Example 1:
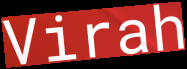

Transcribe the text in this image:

Virah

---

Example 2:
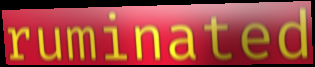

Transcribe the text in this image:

ruminated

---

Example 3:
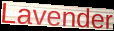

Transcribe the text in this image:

Lavender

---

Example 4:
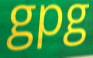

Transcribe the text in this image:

gpg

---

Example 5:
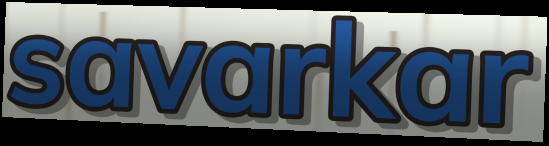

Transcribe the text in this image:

savarkar